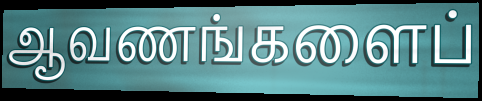
ஆவணங்களைப்